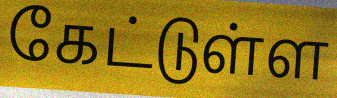
கேட்டுள்ள